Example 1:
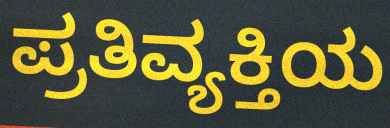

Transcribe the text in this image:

ಪ್ರತಿವ್ಯಕ್ತಿಯ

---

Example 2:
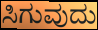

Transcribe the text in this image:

ಸಿಗುವುದು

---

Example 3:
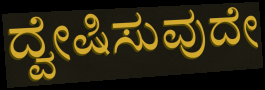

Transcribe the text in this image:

ದ್ವೇಷಿಸುವುದೇ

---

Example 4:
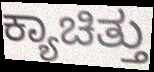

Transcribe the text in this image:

ಕ್ಯಾಚಿತ್ತು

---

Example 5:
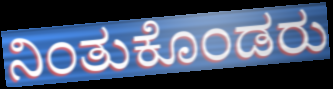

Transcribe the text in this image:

ನಿಂತುಕೊಂಡರು